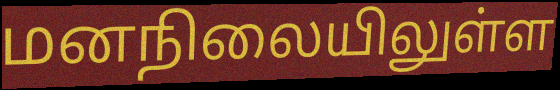
மனநிலையிலுள்ள